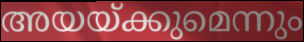
അയയ്ക്കുമെന്നും